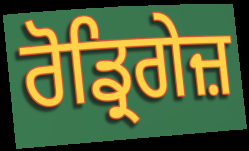
ਰੋਡ੍ਰਿਗੇਜ਼